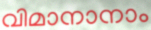
വിമാനാനാം